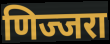
णिज्जरा